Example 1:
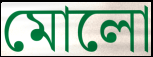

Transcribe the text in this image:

মোলো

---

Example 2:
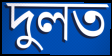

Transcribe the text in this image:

দুলত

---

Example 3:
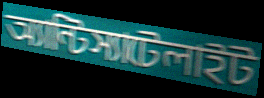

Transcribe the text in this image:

অ্যান্টিস্যাটেলাইট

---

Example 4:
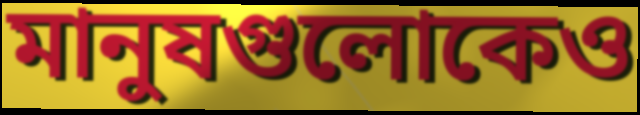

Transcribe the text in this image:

মানুষগুলোকেও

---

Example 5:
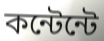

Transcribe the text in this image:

কন্টেন্টে